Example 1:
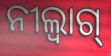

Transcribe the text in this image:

ନୀଲ୍ବାଗ୍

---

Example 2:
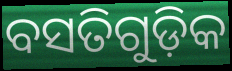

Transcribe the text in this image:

ବସତିଗୁଡ଼ିକ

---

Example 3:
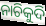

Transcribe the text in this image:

ନାଚିକୁଦି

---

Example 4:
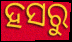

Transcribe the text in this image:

ହସରୁ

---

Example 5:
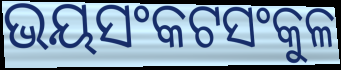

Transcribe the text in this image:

ଭୟସଂକଟସଂକୁଳ